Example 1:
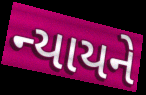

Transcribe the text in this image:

ન્યાયને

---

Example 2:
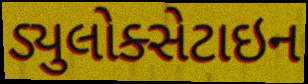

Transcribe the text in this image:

ડ્યુલોક્સેટાઇન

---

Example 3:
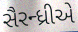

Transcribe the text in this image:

સૈરન્ધ્રીએ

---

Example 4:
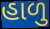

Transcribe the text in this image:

હાળુ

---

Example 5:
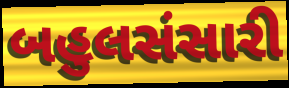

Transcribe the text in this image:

બહુલસંસારી